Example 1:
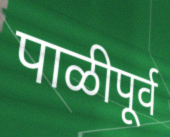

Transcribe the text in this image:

पाळीपूर्व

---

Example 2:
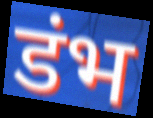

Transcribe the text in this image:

डंभ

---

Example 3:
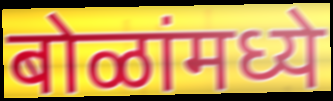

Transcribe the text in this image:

बोळांमध्ये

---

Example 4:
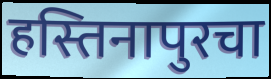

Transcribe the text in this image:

हस्तिनापुरचा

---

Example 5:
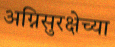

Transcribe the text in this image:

अग्निसुरक्षेच्या